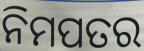
ନିମପତର